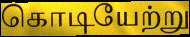
கொடியேற்று